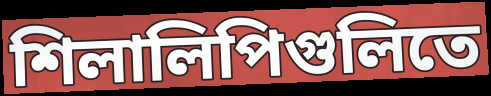
শিলালিপিগুলিতে